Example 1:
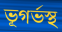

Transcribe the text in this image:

ভূগর্ভস্থ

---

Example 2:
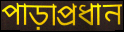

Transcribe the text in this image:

পাড়াপ্রধান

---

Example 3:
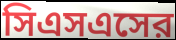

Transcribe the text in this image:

সিএসএসের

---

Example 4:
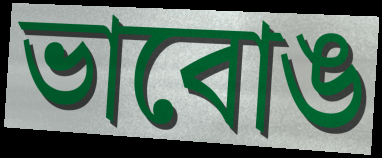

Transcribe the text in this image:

ভাবোঙ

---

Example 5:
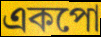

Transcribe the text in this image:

একপো